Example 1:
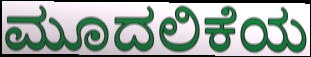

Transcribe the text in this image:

ಮೂದಲಿಕೆಯ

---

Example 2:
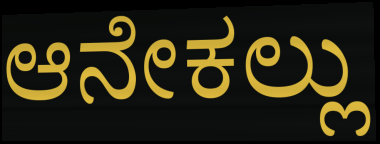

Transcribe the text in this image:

ಆನೇಕಲ್ಲು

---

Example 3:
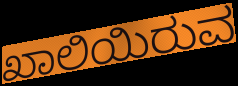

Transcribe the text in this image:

ಖಾಲಿಯಿರುವ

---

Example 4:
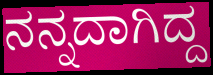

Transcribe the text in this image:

ನನ್ನದಾಗಿದ್ದ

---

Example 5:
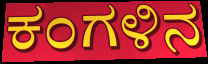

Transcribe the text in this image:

ಕಂಗಳಿನ